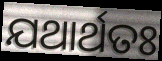
ଯଥାର୍ଥତଃ